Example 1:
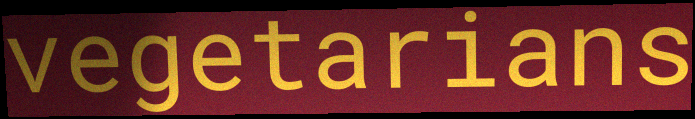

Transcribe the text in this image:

vegetarians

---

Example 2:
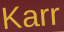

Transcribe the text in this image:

Karr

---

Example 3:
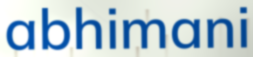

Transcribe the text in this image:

abhimani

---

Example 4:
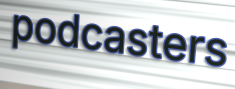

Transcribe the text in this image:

podcasters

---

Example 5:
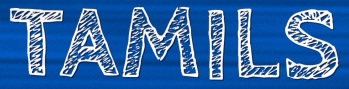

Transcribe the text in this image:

TAMILS